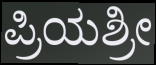
ಪ್ರಿಯಶ್ರೀ